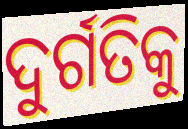
ଦୁର୍ଗତିକୁ